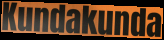
Kundakunda